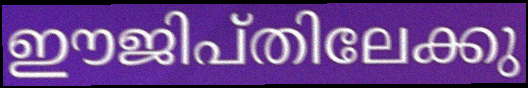
ഈജിപ്തിലേക്കു